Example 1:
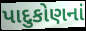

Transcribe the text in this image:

પાદુકોણનાં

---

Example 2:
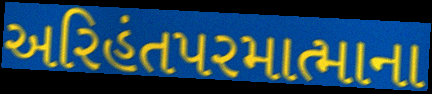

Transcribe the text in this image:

અરિહંતપરમાત્માના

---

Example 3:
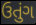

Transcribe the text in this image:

ઉતુંગ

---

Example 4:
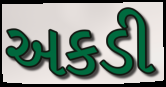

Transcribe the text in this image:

અકડી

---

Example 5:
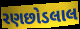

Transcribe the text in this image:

રણછોડલાલ